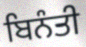
ਬਿਨੰਤੀ